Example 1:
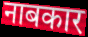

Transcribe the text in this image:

नाबकार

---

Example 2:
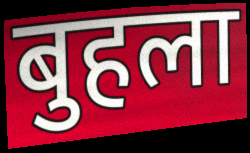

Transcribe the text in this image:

बुहला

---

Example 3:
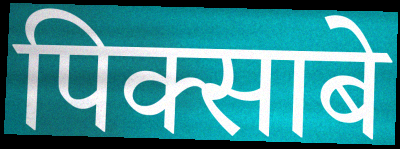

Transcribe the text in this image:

पिक्साबे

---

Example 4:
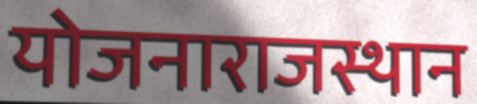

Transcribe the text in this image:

योजनाराजस्थान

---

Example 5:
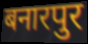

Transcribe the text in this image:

बनारपुर